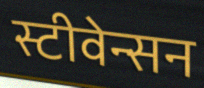
स्टीवेन्सन